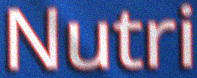
Nutri